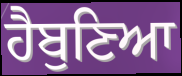
ਹੈਬੁਣਿਆ